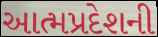
આત્મપ્રદેશની